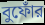
বুফোঁর